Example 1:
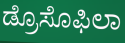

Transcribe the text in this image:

ಡ್ರೊಸೊಫಿಲಾ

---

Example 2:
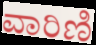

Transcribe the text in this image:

ವಾರಿಣಿ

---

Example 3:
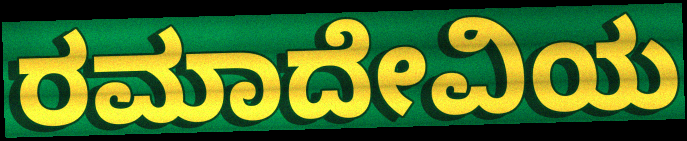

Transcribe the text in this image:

ರಮಾದೇವಿಯ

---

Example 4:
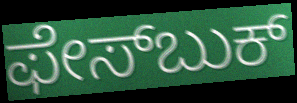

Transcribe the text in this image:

ಫೇಸ್‍ಬುಕ್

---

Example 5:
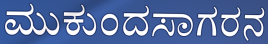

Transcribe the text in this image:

ಮುಕುಂದಸಾಗರನ